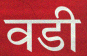
वडी